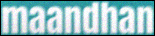
maandhan